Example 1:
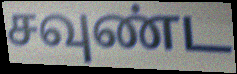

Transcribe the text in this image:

சவுண்ட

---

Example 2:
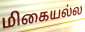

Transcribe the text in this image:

மிகையல்ல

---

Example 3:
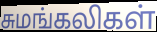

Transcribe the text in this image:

சுமங்கலிகள்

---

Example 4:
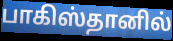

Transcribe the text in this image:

பாகிஸ்தானில்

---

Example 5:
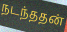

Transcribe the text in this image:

நடந்ததன்